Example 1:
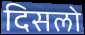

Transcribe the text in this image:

दिसलो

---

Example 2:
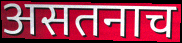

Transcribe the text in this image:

असतनाच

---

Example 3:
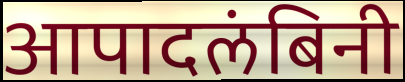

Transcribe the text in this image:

आपादलंबिनी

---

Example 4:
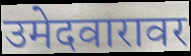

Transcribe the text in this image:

उमेदवारावर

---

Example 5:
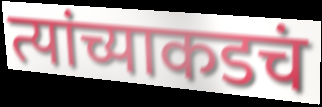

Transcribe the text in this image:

त्यांच्याकडचं